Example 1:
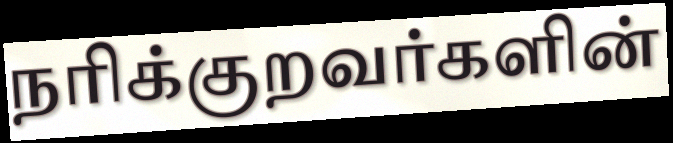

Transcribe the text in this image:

நரிக்குறவர்களின்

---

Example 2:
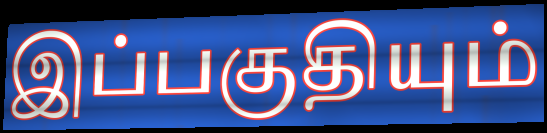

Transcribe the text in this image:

இப்பகுதியும்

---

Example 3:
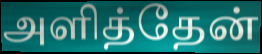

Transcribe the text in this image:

அளித்தேன்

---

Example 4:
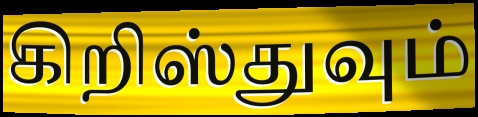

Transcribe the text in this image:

கிறிஸ்துவும்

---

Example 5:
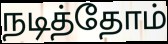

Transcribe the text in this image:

நடித்தோம்